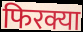
फिरक्या